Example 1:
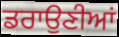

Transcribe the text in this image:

ਡਰਾਉਣੀਆਂ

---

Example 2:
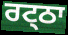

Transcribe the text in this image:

ਰਟ੍ਠਾ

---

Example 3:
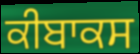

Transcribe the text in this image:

ਕੀਬਾਕਸ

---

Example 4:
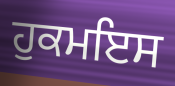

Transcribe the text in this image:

ਹੁਕਮਇਸ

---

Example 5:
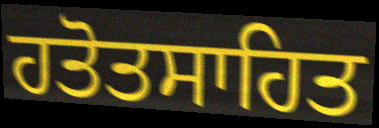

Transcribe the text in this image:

ਹਤੋਤਸਾਹਿਤ